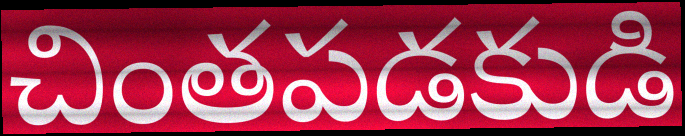
చింతపడకుడి